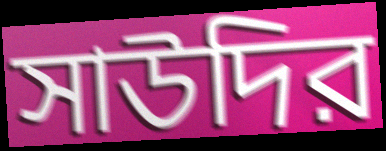
সাউদির